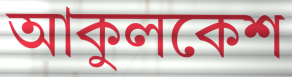
আকুলকেশ